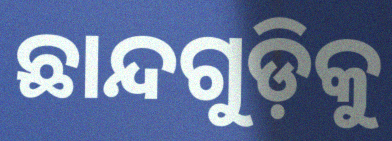
ଛାନ୍ଦଗୁଡ଼ିକୁ